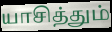
யாசித்தும்